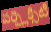
పర్ప్లెక్సిటీ